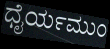
ಧೈರ್ಯಮುಂ